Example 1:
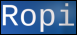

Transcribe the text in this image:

Ropi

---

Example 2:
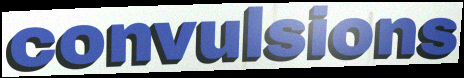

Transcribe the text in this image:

convulsions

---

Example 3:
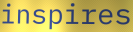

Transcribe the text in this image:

inspires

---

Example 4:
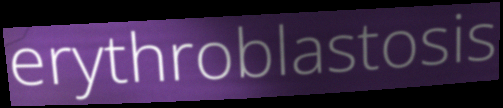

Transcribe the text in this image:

erythroblastosis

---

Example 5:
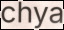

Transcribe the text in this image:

chya